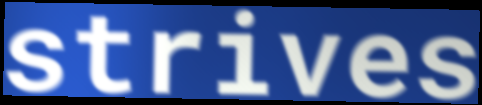
strives